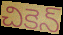
చికెన్